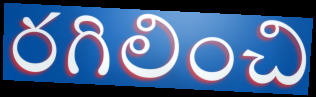
రగిలించి